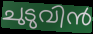
ചുടുവിൻ